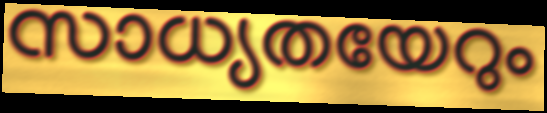
സാധ്യതയേറും